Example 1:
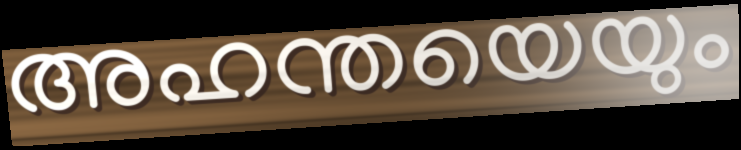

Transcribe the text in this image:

അഹന്തയെയും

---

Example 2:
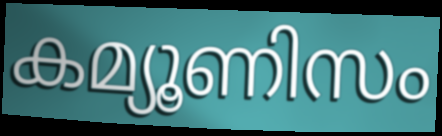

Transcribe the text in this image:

കമ്യൂണിസം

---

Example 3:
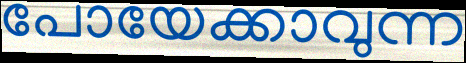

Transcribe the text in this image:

പോയേക്കാവുന്ന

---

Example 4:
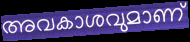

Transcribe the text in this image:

അവകാശവുമാണ്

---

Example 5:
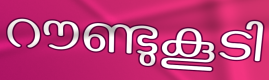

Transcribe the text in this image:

റൗണ്ടുകൂടി